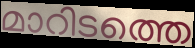
മാറിടത്തെ